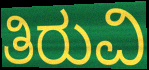
ತಿರುವಿ